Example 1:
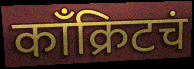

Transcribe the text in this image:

काँक्रिटचं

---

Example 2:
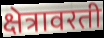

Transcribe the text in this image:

क्षेत्रावरती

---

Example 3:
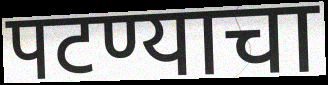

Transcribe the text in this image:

पटण्याचा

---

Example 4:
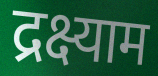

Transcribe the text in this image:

द्रक्ष्याम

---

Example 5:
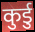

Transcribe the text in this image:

कुर्डु